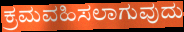
ಕ್ರಮವಹಿಸಲಾಗುವುದು